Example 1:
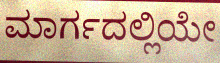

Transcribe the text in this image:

ಮಾರ್ಗದಲ್ಲಿಯೇ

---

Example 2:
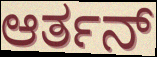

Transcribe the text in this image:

ಆರ್ತನ್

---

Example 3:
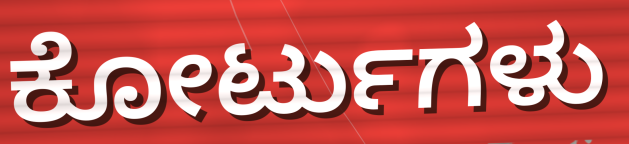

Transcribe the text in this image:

ಕೋರ್ಟುಗಳು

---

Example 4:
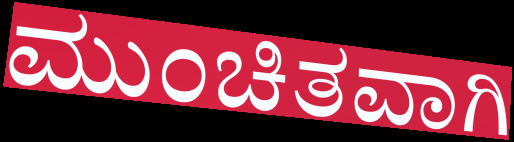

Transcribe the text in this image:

ಮುಂಚಿತವಾಗಿ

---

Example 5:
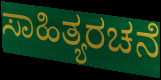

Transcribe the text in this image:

ಸಾಹಿತ್ಯರಚನೆ